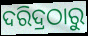
ଦରିଦ୍ରଠାରୁ